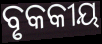
ବୃକକୀୟ